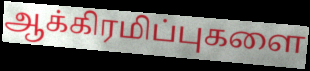
ஆக்கிரமிப்புகளை